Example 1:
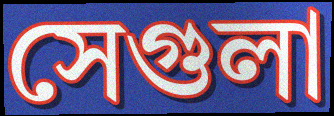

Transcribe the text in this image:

সেগুলা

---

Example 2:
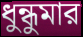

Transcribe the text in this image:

ধুন্ধুমার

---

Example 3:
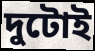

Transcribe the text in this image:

দুটোই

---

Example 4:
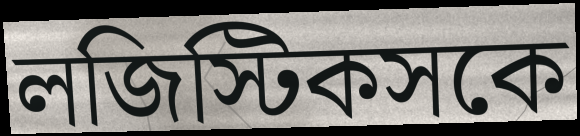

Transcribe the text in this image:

লজিস্টিকসকে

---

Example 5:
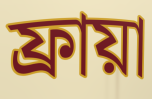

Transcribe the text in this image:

ফ্রায়া